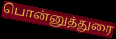
பொன்னுத்துரை